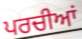
ਪਰਚੀਆਂ